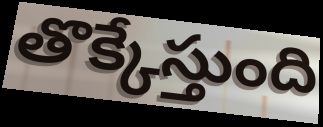
తొక్కేస్తుంది